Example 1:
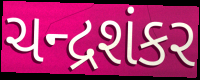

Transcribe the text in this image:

ચન્દ્રશંકર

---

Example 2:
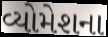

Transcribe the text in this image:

વ્યોમેશના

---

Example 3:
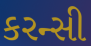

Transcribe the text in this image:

કરન્સી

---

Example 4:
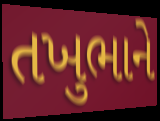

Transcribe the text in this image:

તખુભાને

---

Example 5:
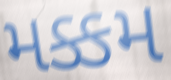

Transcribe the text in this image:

મક્કમ